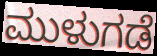
ಮುಳುಗಡೆ